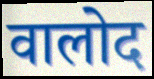
वालोद